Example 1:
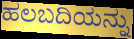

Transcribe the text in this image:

ಹಲಬದಿಯನ್ನು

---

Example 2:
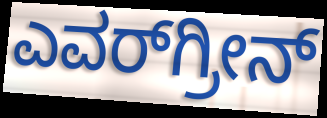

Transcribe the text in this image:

ಎವರ್‌ಗ್ರೀನ್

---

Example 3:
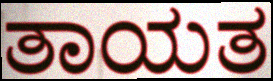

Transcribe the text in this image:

ತಾಯತ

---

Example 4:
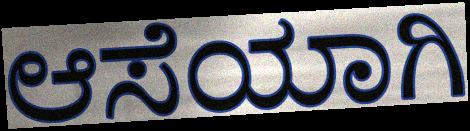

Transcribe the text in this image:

ಆಸೆಯಾಗಿ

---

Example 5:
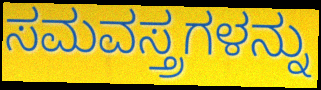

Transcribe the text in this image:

ಸಮವಸ್ತ್ರಗಳನ್ನು